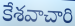
కేశవాచారి